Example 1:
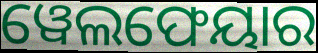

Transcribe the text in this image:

ୱେଲଫେୟାର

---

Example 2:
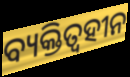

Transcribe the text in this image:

ବ୍ୟକ୍ତିତ୍ୱହୀନ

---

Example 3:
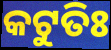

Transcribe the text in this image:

କଟୁତିଃ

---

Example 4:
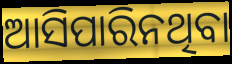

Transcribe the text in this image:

ଆସିପାରିନଥିବା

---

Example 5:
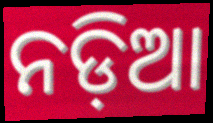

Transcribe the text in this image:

ନଡ଼ିଆ